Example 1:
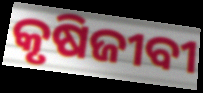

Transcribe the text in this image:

କୃଷିଜୀବୀ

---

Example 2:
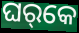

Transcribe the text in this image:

ଘର୍‌କେ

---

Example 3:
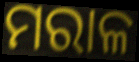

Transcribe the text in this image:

ମରାଳ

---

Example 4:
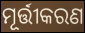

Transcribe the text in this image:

ମୂର୍ତ୍ତୀକରଣ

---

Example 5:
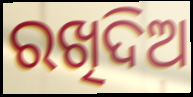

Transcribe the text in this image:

ରଖିଦିଅ